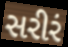
સરીરં